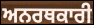
ਅਨਰਥਕਾਰੀ